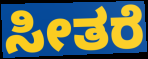
ಸೀತರೆ